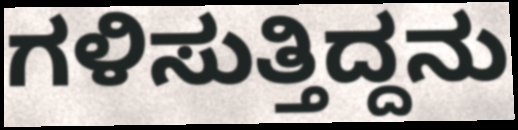
ಗಳಿಸುತ್ತಿದ್ದನು